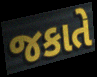
જકાતે